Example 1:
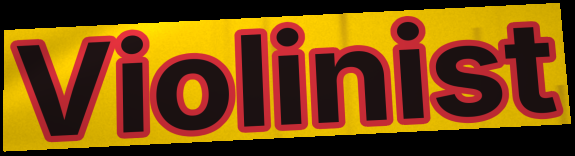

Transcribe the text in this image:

Violinist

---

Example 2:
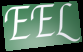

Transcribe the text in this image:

EEL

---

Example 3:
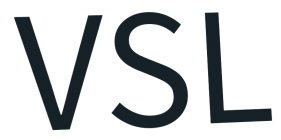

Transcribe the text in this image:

VSL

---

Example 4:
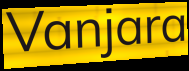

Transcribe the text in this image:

Vanjara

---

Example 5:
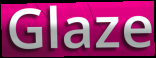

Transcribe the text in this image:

Glaze